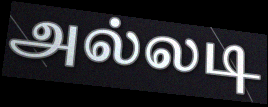
அல்லடி